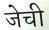
जेची